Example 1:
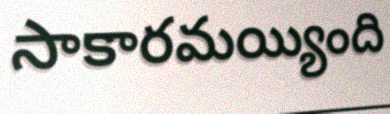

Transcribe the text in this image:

సాకారమయ్యింది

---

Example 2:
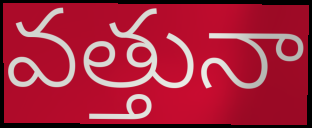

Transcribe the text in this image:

వత్తునా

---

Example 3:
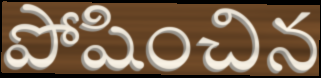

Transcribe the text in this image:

పోషించిన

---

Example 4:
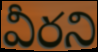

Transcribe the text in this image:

వీరని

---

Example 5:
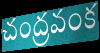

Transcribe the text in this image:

చంద్రవంక